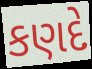
કણદે